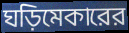
ঘড়িমেকারের